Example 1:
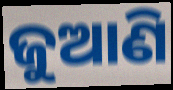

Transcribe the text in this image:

ଜୁଆଣି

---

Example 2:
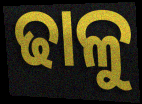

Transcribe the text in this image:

ଢାଳୁ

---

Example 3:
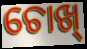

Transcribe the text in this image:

ଚୋଖ୍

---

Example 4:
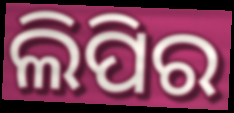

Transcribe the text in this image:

ଲିପିର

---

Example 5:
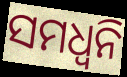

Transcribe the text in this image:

ସମଧ୍ୱନି